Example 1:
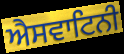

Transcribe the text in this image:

ਐਸਵਾਟਿਨੀ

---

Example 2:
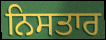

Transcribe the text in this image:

ਨਿਸਤਾਰ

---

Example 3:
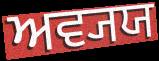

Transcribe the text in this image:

ਅਵ੍ਯਯ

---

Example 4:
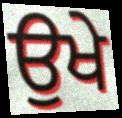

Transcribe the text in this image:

ਉਖੇ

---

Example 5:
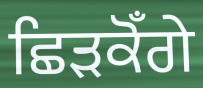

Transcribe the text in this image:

ਛਿੜਕੋਁਗੇ